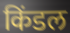
किंडल